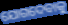
ଯୋଗଦେବାକୁ